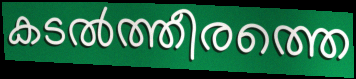
കടൽത്തീരത്തെ